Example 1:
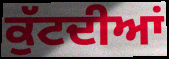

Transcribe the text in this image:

ਕੁੱਟਦੀਆਂ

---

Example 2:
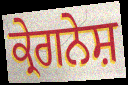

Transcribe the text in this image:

ਕ੍ਰੇਗਨੇਸ਼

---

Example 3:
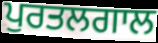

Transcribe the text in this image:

ਪੁਰਤਲਗਾਲ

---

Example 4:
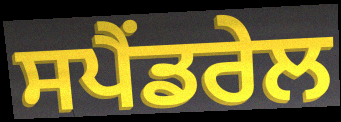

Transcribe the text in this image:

ਸਪੈਂਡਰੇਲ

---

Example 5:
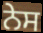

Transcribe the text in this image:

ਨੇਸ